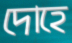
দোহে